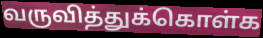
வருவித்துக்கொள்க